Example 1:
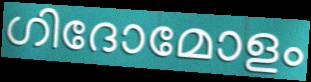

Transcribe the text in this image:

ഗിദോമോളം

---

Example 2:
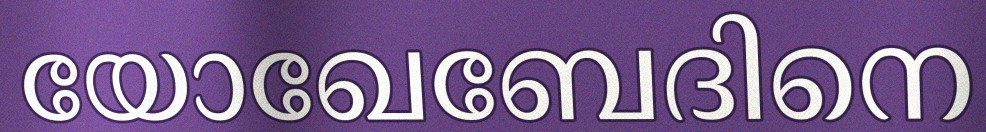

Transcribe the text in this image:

യോഖേബേദിനെ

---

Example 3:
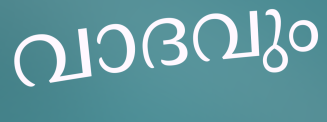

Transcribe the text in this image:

വാദവും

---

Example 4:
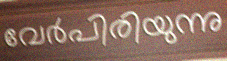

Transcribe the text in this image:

വേർപിരിയുന്നു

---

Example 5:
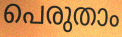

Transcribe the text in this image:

പെരുതാം